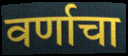
वर्णाचा